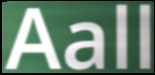
Aall